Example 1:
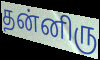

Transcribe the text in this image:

தன்னிரு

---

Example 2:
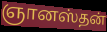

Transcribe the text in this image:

ஞானஸ்தன்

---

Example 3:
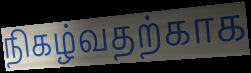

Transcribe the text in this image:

நிகழ்வதற்காக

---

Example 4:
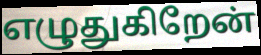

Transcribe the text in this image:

எழுதுகிறேன்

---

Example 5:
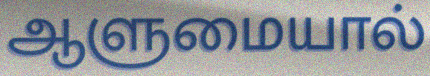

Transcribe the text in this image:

ஆளுமையால்